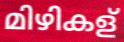
മിഴികള്